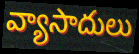
వ్యాసాదులు